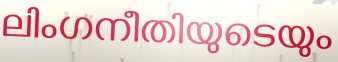
ലിംഗനീതിയുടെയും